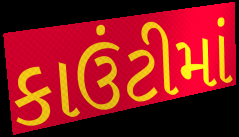
કાઉંટીમાં